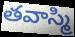
తవాస్మి